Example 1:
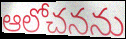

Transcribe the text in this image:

ఆలోచనను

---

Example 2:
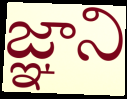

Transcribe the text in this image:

జ్ఞాని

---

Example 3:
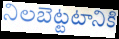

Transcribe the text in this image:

నిలబెట్టటానికి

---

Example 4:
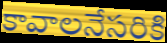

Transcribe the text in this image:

కావాలనేసరికి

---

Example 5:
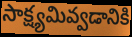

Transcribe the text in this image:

సాక్ష్యమివ్వడానికి